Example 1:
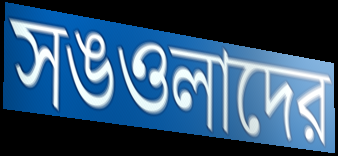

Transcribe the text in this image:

সঙওলাদের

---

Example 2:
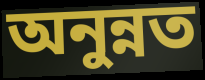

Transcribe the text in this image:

অনুন্নত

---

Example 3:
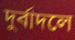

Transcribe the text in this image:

দুর্বাদলে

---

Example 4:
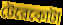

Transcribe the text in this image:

টেরেকোটা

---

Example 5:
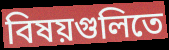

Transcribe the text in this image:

বিষয়গুলিতে